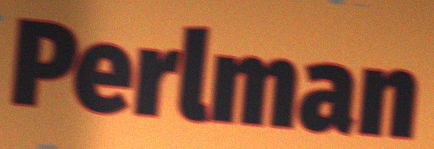
Perlman